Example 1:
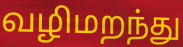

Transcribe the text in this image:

வழிமறந்து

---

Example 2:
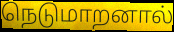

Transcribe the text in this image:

நெடுமாறனால்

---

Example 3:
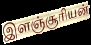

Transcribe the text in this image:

இளஞ்சூரியன்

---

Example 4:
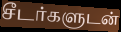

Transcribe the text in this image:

சீடர்களுடன்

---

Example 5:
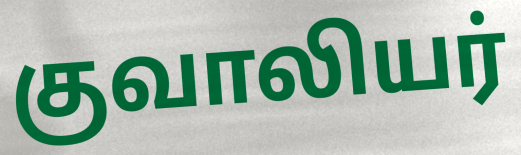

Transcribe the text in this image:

குவாலியர்